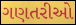
ગણતરીઓ